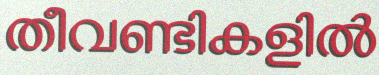
തീവണ്ടികളിൽ